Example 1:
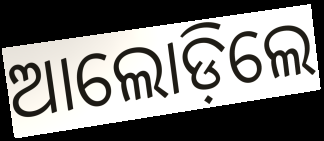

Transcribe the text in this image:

ଆଲୋଡ଼ିଲେ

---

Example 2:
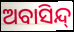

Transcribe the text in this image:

ଅବାସିନ୍ଦ୍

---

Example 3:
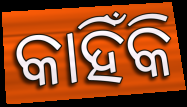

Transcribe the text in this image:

କାହିଁକି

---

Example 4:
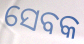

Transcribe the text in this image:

ସେବକ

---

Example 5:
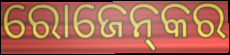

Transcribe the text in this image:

ରୋଜେନ୍‌କର